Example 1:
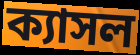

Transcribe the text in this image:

ক্যাসল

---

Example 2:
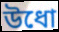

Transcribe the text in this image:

উধো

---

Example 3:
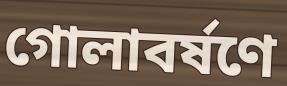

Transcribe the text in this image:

গোলাবর্ষণে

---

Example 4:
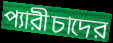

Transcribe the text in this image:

প্যারীচাদের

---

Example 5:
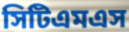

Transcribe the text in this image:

সিটিএমএস